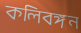
কলিবঙ্গন